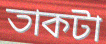
তাকটা